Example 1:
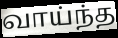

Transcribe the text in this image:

வாய்ந்த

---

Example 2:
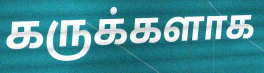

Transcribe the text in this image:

கருக்களாக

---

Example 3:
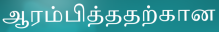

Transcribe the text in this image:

ஆரம்பித்ததற்கான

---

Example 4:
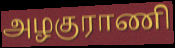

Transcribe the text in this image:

அழகுராணி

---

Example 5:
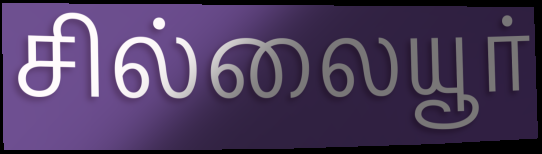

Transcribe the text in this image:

சில்லையூர்